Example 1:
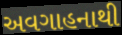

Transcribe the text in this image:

અવગાહનાથી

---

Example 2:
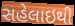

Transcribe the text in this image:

સહેલાઇથી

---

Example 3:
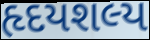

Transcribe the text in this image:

હૃદયશલ્ય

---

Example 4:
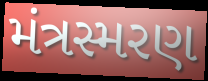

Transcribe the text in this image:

મંત્રસ્મરણ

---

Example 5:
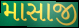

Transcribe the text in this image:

માસાજી